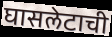
घासलेटाची